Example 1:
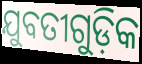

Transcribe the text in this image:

ଯୁବତୀଗୁଡ଼ିକ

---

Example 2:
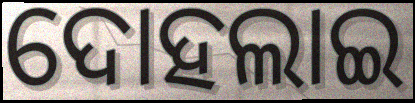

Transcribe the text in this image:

ଦୋହଲାଇ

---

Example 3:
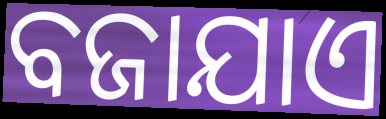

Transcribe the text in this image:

ବଜାଯାଏ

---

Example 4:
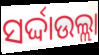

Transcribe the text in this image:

ସର୍ଦ୍ଦାଉଲ୍ଲା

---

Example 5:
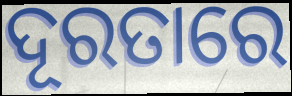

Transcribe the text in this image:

ଦୂରତାରେ